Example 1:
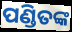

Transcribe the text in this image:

ପଣ୍ଡିତଙ୍କ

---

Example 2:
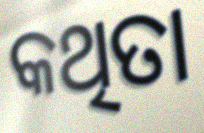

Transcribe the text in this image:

କଥିତା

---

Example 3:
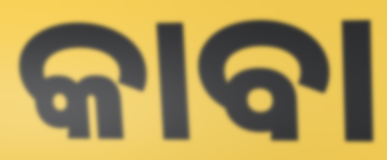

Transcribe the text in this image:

କାବା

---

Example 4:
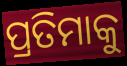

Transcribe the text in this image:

ପ୍ରତିମାକୁ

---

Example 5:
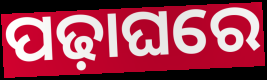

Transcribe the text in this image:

ପଢ଼ାଘରେ